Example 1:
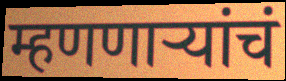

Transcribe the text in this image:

म्हणणाऱ्यांचं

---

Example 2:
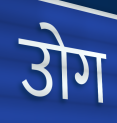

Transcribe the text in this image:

उोग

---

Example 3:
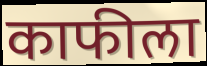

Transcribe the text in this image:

काफीला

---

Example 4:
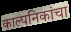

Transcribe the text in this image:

काल्पनिकांचा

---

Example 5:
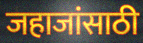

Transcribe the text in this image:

जहाजांसाठी